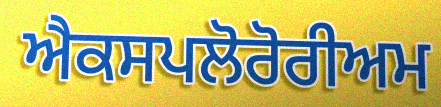
ਐਕਸਪਲੋਰੋਰੀਅਮ